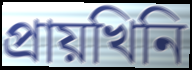
প্ৰায়খিনি